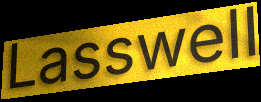
Lasswell